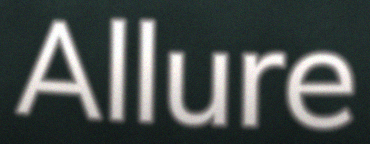
Allure